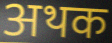
अथक